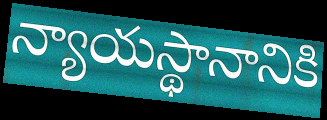
న్యాయస్థానానికి